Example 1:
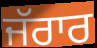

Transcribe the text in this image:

ਜੱਰਾਰ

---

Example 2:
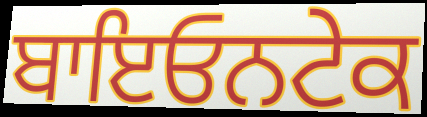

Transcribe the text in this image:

ਬਾਇਓਨਟੇਕ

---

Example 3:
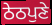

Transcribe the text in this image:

ਠੇਠਪੁਣੇ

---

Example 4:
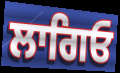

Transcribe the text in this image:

ਲਾਗਿਓ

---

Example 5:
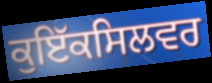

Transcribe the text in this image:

ਕੁਇੱਕਸਿਲਵਰ